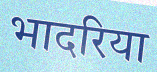
भादरिया